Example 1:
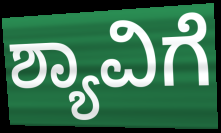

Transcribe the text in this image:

ಶ್ಯಾವಿಗೆ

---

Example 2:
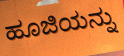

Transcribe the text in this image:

ಹೂಜಿಯನ್ನು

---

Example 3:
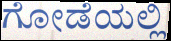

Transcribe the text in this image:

ಗೋಡೆಯಲ್ಲಿ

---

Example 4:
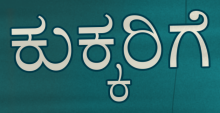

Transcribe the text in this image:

ಕುಕ್ಕರಿಗೆ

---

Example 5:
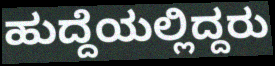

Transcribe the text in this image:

ಹುದ್ದೆಯಲ್ಲಿದ್ದರು